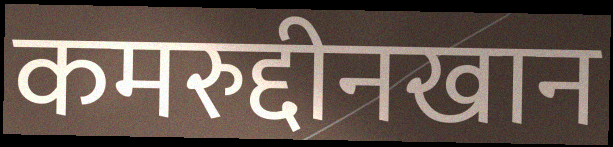
कमरुद्दीनखान